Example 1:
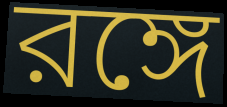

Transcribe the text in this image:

রঙ্গে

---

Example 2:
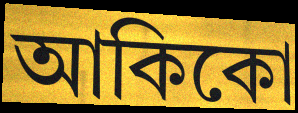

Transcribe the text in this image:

আকিকো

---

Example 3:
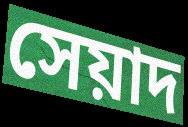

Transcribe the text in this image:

সেয়াদ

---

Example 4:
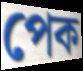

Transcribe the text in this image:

পেক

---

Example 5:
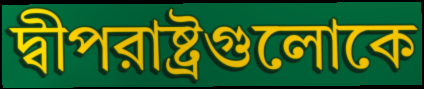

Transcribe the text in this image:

দ্বীপরাষ্ট্রগুলোকে